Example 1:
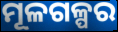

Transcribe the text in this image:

ମୂଳଗଳ୍ପର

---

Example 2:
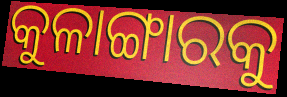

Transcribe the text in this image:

କୁଳାଙ୍ଗାରକୁ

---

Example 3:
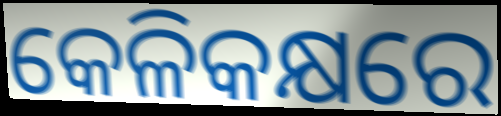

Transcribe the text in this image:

କେଳିକକ୍ଷରେ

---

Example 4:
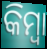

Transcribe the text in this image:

କିମ୍ଵା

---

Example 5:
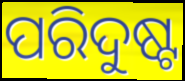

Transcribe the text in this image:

ପରିଦୁଷ୍ଟ